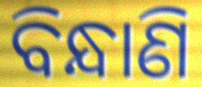
ବିନ୍ଧାଣି